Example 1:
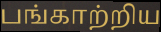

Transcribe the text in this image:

பங்காற்றிய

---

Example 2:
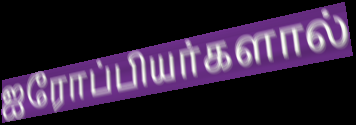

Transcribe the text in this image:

ஐரோப்பியர்களால்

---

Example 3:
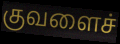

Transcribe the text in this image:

குவளைச்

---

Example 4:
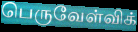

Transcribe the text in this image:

பெருவேள்விக்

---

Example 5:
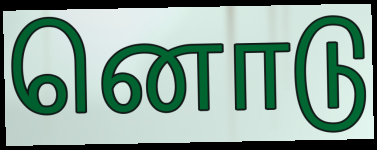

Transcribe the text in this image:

னொடு